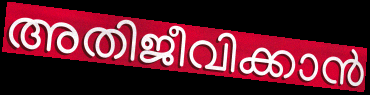
അതിജീവിക്കാൻ